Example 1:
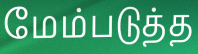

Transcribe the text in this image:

மேம்படுத்த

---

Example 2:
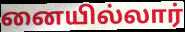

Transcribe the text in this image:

னையில்லார்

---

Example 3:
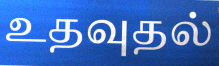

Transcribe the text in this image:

உதவுதல்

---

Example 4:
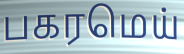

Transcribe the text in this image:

பகரமெய்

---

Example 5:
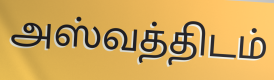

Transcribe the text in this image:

அஸ்வத்திடம்